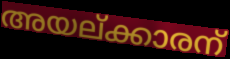
അയല്ക്കാരന്